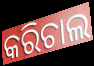
କରିଚାଲ